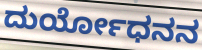
ದುರ್ಯೋಧನನ